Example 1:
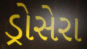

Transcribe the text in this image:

ડ્રોસેરા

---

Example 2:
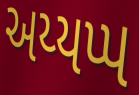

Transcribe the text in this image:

અય્યપ્પ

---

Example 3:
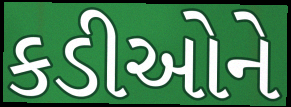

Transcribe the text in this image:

કડીઓને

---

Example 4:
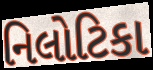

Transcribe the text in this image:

નિલોટિકા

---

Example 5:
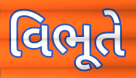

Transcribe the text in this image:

વિભૂતે